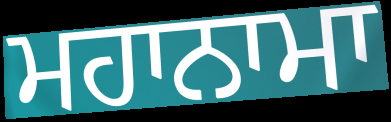
ਮਹਾਨਾਮਾ